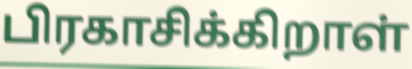
பிரகாசிக்கிறாள்